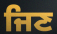
ਜਿਣ